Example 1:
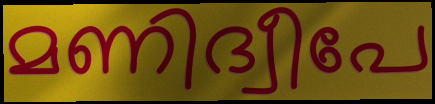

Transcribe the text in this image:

മണിദ്വീപേ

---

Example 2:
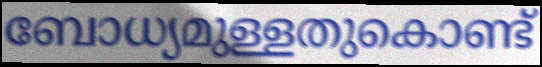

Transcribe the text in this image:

ബോധ്യമുള്ളതുകൊണ്ട്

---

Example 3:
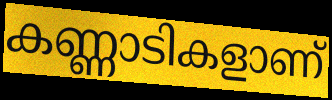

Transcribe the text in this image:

കണ്ണാടികളാണ്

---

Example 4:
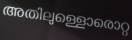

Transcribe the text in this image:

അതിലുള്ളൊരൊറ്റ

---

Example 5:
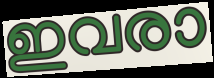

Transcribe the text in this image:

ഇവരാ